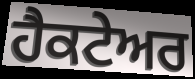
ਹੈਕਟੇਅਰ